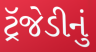
ટ્રૅજેડીનું